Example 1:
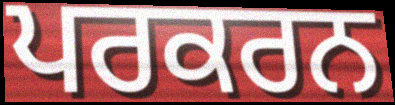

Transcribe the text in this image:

ਪਰਕਰਨ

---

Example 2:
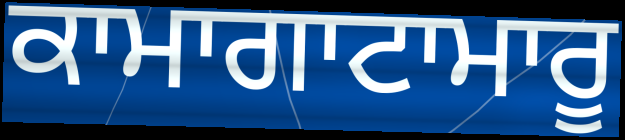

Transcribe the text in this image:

ਕਾਮਾਗਾਟਾਮਾਰੂ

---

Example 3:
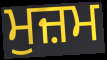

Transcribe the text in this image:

ਮੁਜ਼ਮ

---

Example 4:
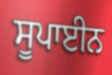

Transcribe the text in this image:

ਸੂਪਾਈਨ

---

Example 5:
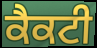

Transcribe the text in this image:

ਕੈਕਟੀ